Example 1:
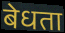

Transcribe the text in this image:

बेधता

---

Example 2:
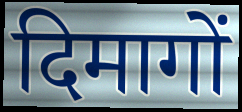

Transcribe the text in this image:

दिमागों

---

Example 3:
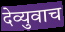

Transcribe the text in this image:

देव्युवाच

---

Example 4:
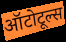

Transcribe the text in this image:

ऑटोटूल्स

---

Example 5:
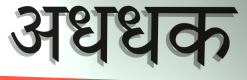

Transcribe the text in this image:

अधधक